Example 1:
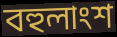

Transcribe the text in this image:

বহুলাংশ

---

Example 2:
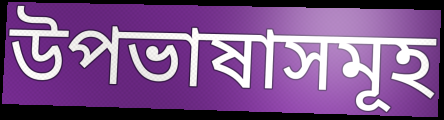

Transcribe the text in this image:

উপভাষাসমূহ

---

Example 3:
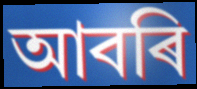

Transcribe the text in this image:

আবৰি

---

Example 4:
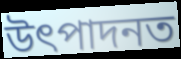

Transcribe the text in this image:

উৎপাদনত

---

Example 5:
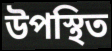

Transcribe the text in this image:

উপস্থিত